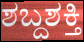
ಶಬ್ದಶಕ್ತಿ